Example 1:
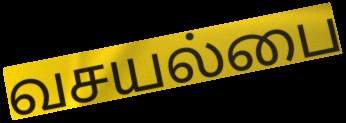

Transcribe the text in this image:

வசயல்பை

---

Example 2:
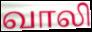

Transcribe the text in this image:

வாலி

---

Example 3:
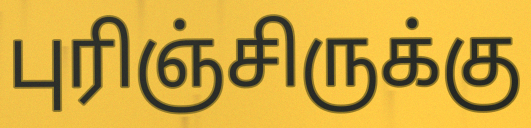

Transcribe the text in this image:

புரிஞ்சிருக்கு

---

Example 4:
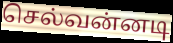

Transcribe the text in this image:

செல்வன்னடி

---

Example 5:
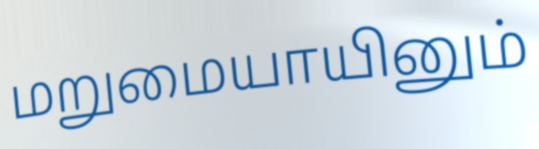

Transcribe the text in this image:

மறுமையாயினும்